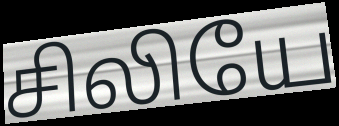
சிலியே